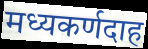
मध्यकर्णदाह